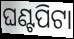
ଘଣ୍ଟପିଟା